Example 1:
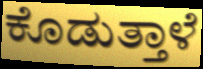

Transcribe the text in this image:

ಕೊಡುತ್ತಾಳೆ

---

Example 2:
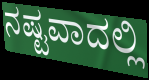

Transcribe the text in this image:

ನಷ್ಟವಾದಲ್ಲಿ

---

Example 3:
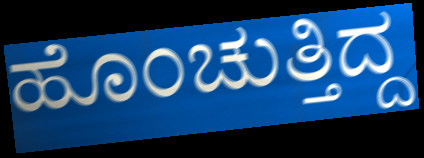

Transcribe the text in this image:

ಹೊಂಚುತ್ತಿದ್ದ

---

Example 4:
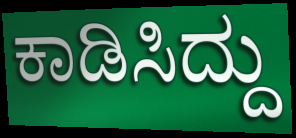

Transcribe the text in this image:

ಕಾಡಿಸಿದ್ದು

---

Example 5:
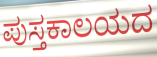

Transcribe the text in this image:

ಪುಸ್ತಕಾಲಯದ